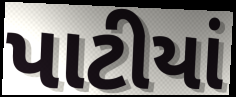
પાટીયાં